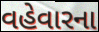
વહેવારના